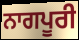
ਨਾਗਪੂਰੀ